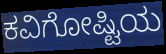
ಕವಿಗೋಷ್ಟಿಯ